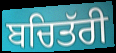
ਬਚਿਤੱਰੀ